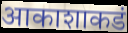
आकाशाकडं